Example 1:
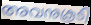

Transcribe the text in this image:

അവനുകൂടി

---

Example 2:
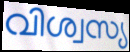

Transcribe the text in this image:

വിശ്വസ്യ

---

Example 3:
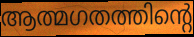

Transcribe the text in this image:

ആത്മഗതത്തിന്റെ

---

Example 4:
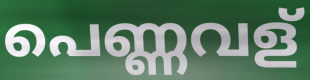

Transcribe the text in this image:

പെണ്ണവള്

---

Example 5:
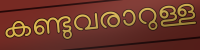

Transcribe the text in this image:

കണ്ടുവരാറുള്ള